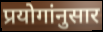
प्रयोगांनुसार